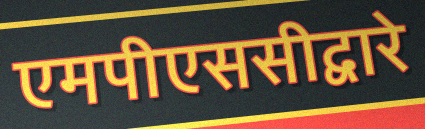
एमपीएससीद्वारे